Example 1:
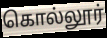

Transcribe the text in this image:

கொல்லூர்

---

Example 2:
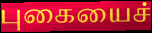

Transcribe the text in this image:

புகையைச்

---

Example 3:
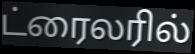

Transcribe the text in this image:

ட்ரைலரில்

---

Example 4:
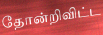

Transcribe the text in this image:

தோன்றிவிட்ட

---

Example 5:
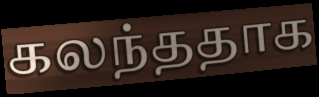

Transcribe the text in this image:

கலந்ததாக